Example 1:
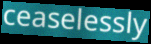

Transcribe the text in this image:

ceaselessly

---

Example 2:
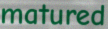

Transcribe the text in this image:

matured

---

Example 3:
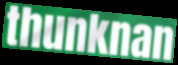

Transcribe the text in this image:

thunknan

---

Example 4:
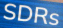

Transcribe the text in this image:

SDRs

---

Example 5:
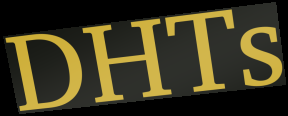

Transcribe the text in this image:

DHTs